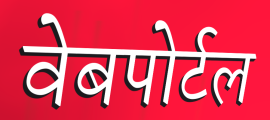
वेबपोर्टल